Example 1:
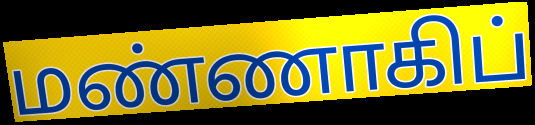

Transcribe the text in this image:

மண்ணாகிப்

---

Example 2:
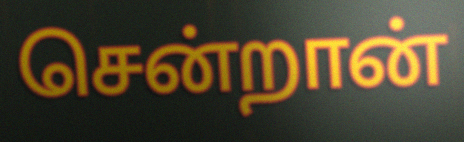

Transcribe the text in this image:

சென்றான்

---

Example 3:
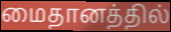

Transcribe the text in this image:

மைதானத்தில்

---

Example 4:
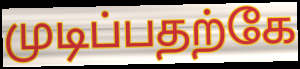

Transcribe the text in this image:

முடிப்பதற்கே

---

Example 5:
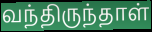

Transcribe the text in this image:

வந்திருந்தாள்